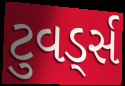
ટુવર્ડ્સ